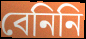
বেনিনি